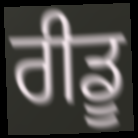
ਰੀਡੂ